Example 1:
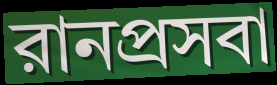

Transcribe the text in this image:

রানপ্রসবা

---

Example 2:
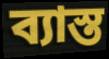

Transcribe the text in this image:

ব্যাস্ত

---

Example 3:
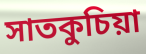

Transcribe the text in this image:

সাতকুচিয়া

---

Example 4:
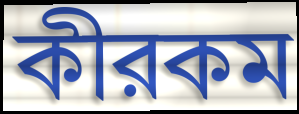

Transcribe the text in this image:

কীরকম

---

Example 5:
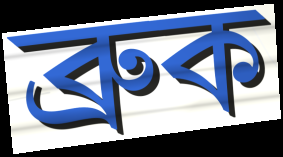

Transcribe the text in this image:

ব্রুক